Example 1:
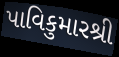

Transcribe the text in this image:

પાવિકુમારશ્રી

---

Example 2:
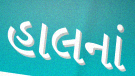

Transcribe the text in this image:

હાલનાં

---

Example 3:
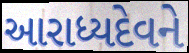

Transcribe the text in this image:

આરાધ્યદેવને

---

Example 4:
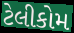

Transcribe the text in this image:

ટેલીકોમ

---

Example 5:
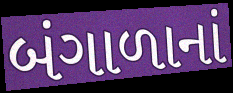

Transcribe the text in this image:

બંગાળાનાં